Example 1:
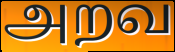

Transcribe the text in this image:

அறவ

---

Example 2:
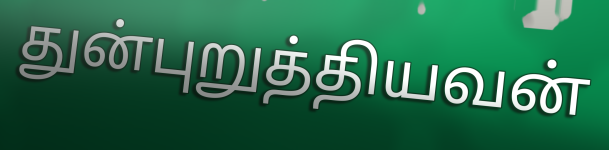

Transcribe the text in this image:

துன்புறுத்தியவன்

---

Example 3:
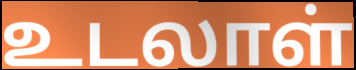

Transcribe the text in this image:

உடலாள்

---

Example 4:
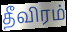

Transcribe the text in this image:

தீவிரம்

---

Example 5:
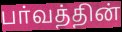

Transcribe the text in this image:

பர்வத்தின்